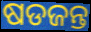
ଷଡଜନ୍ତ